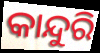
କାନ୍ଦୁରି